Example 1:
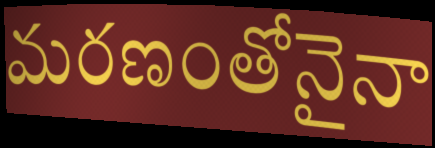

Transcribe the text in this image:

మరణంతోనైనా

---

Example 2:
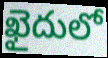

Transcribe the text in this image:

ఖైదులో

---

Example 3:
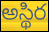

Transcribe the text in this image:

అస్థిర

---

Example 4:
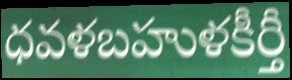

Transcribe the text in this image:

ధవళబహుళకీర్తీ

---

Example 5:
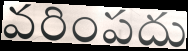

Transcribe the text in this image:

వరింపదు